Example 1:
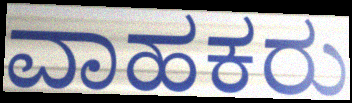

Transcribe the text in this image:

ವಾಹಕರು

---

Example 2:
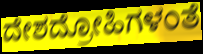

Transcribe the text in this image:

ದೇಶದ್ರೋಹಿಗಳಂತೆ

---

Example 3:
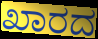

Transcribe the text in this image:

ಖಾರದ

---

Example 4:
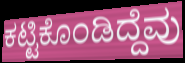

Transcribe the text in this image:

ಕಟ್ಟಿಕೊಂಡಿದ್ದೆವು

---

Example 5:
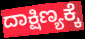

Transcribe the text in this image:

ದಾಕ್ಷಿಣ್ಯಕ್ಕೆ